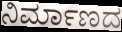
ನಿರ್ಮಾಣದ